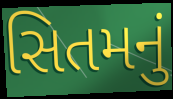
સિતમનું